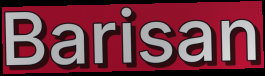
Barisan